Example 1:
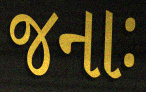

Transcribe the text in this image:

જનાઃ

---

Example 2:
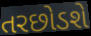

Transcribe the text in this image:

તરછોડશે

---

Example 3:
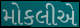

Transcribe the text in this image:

મોકલીએ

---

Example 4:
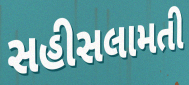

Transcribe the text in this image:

સહીસલામતી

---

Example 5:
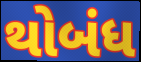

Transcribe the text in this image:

થોબંધ